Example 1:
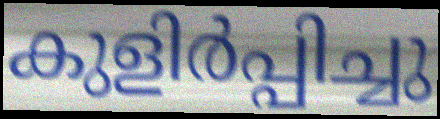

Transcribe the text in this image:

കുളിർപ്പിച്ചു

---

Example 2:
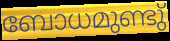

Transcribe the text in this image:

ബോധമുണ്ടു്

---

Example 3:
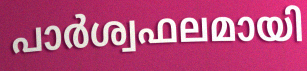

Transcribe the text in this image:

പാർശ്വഫലമായി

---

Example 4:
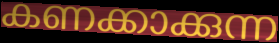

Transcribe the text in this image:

കണക്കാക്കുന്ന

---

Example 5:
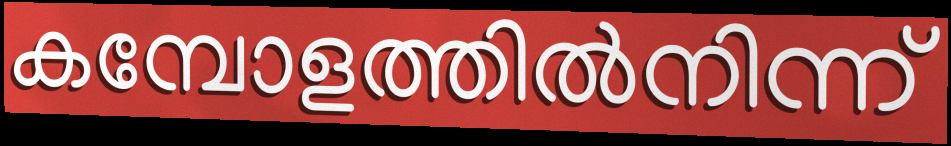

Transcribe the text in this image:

കമ്പോളത്തിൽനിന്ന്